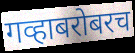
गव्हाबरोबरच